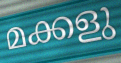
മക്കളു